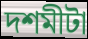
দশমীটা